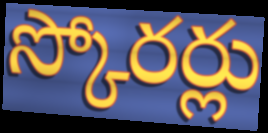
స్కోరర్లు